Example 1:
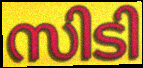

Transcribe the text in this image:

സിടി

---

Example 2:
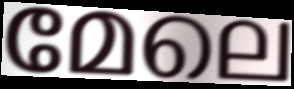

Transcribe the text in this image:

മേലെ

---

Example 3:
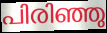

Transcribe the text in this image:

പിരിഞ്ഞു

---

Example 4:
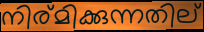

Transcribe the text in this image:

നിര്മിക്കുന്നതില്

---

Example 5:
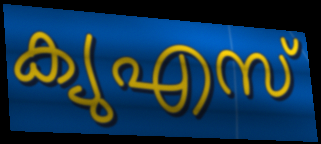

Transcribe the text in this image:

ക്യുഎസ്